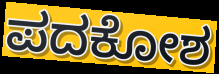
ಪದಕೋಶ